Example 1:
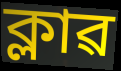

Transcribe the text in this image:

ক্লাৱ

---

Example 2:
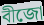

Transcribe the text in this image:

বীজো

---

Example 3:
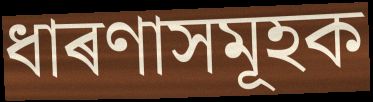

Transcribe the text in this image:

ধাৰণাসমূহক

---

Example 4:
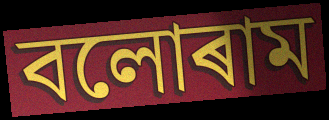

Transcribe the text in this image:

বলোৰাম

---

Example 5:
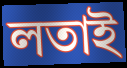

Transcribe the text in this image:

লতাই